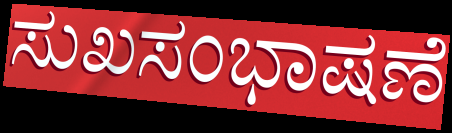
ಸುಖಸಂಭಾಷಣೆ